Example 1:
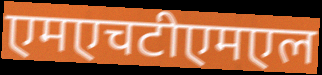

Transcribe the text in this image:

एमएचटीएमएल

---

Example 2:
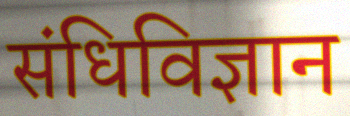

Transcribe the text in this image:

संधिविज्ञान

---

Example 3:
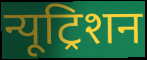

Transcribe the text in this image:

न्यूट्रिशन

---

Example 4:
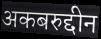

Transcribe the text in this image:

अकबरुद्दीन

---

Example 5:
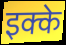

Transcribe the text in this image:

इक्के